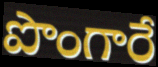
పొంగారే